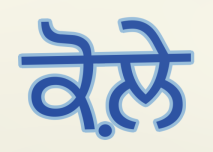
ਕੋਲ਼ੇ